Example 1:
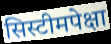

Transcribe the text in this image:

सिस्टीमपेक्षा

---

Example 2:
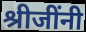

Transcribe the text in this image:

श्रीजींनी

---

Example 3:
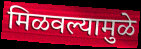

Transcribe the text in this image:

मिळवल्यामुळे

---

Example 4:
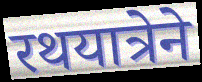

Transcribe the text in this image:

रथयात्रेने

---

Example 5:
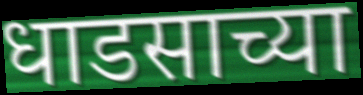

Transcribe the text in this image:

धाडसाच्या